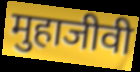
मुहाजीवी